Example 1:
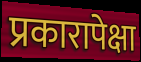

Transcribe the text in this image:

प्रकारापेक्षा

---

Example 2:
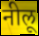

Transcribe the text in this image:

नीलू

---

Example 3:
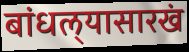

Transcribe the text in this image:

बांधल्यासारखं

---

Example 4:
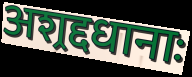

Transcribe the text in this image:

अश्रद्दधानाः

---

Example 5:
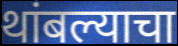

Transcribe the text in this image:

थांबल्याचा